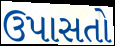
ઉપાસતો